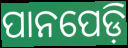
ପାନପେଡ଼ି